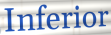
Inferior